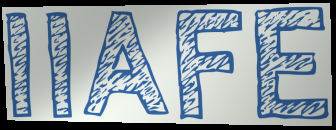
IIAFE